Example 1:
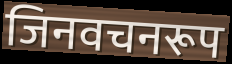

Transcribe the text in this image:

जिनवचनरूप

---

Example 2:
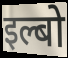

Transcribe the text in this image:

इल्बो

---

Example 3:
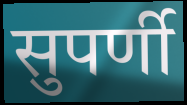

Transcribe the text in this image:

सुपर्णी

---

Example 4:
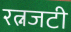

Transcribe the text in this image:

रत्नजटी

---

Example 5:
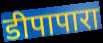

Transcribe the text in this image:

डीपापारा